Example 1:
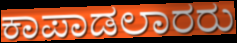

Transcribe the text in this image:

ಕಾಪಾಡಲಾರರು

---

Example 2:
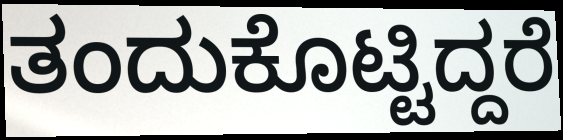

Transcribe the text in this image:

ತಂದುಕೊಟ್ಟಿದ್ದರೆ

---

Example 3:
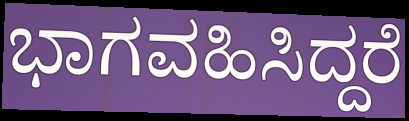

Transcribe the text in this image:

ಭಾಗವಹಿಸಿದ್ದರೆ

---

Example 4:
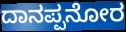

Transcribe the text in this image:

ದಾನಪ್ಪನೋರ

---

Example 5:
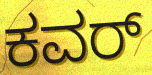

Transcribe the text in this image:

ಕವರ್